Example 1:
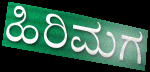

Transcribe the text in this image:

ಹಿರಿಮಗ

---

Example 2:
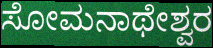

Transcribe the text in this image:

ಸೋಮನಾಥೇಶ್ವರ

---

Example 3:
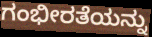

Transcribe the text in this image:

ಗಂಭೀರತೆಯನ್ನು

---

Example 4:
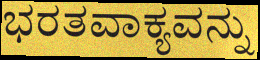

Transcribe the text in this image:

ಭರತವಾಕ್ಯವನ್ನು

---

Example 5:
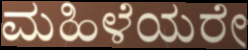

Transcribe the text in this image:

ಮಹಿಳೆಯರೇ